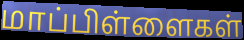
மாப்பிள்ளைகள்